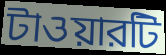
টাওয়ারটি